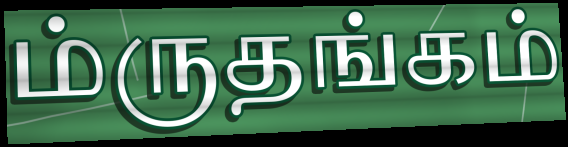
ம்ருதங்கம்